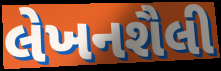
લેખનશૈલી